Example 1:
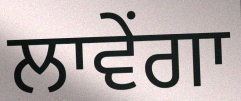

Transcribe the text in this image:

ਲਾਵੇਂਗਾ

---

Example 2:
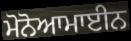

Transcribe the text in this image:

ਮੋਨੋਆਮਾਈਨ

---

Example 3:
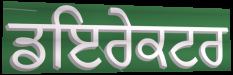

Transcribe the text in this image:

ਡਇਰੇਕਟਰ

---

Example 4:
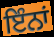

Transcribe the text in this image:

ਇੰਨਾਂ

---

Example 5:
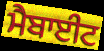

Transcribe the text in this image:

ਮੈਬਾਈਟ